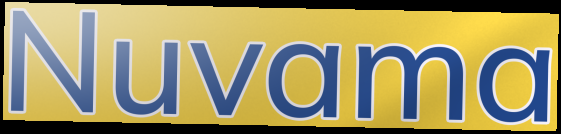
Nuvama